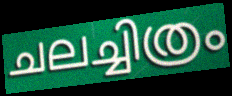
ചലച്ചിത്രം